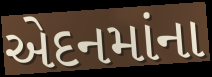
એદનમાંના